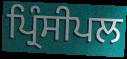
ਪ੍ਰਿੰਸੀਪਲ